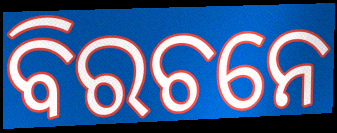
ବିରଚନେ